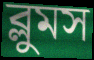
ব্লুমস